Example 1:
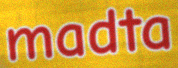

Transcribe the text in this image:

madta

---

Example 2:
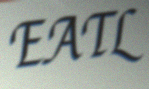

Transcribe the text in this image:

EATL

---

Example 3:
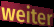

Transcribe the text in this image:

weiter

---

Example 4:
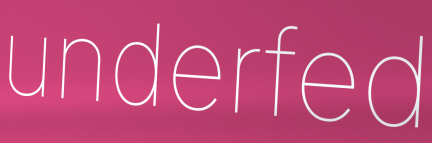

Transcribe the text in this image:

underfed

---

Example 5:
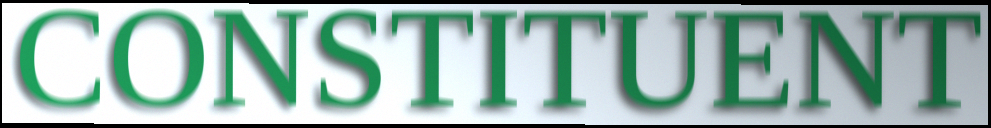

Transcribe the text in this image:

CONSTITUENT